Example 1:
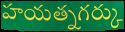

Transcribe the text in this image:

హయత్నగర్కు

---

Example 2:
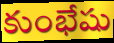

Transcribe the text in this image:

కుంభేషు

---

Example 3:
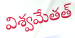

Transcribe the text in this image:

విశ్వమేతత్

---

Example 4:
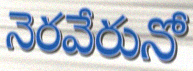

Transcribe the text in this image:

నెరవేరునో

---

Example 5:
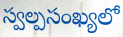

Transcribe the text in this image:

స్వల్పసంఖ్యలో